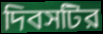
দিবসটির